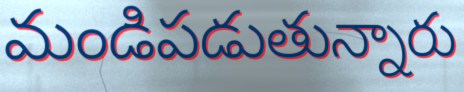
మండిపడుతున్నారు